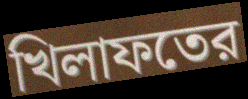
খিলাফতের